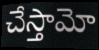
చేస్తామో